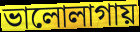
ভালোলাগায়